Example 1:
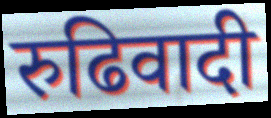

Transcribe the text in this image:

रुढिवादी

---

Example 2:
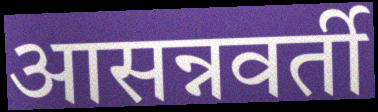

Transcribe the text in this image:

आसन्नवर्ती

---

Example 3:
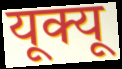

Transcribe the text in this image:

यूक्यू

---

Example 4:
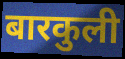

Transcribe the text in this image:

बारकुली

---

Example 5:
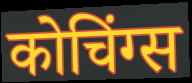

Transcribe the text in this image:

कोचिंग्स